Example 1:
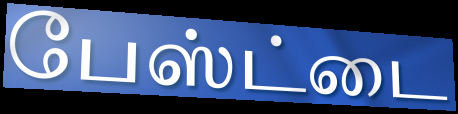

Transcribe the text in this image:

பேஸ்ட்டை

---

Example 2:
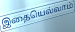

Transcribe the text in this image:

இதையெல்லாம்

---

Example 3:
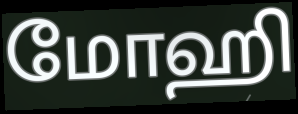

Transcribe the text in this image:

மோஹி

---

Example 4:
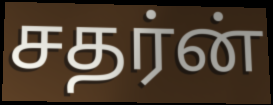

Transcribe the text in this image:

சதர்ன்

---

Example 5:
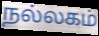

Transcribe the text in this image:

நல்லகம்